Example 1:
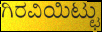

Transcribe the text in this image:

ಗಿರವಿಯಿಟ್ಟು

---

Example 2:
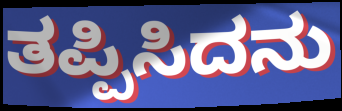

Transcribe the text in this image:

ತಪ್ಪಿಸಿದನು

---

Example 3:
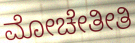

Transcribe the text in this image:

ಮೋಚೇತೀತಿ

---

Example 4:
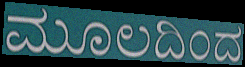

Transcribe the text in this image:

ಮೂಲದಿಂದ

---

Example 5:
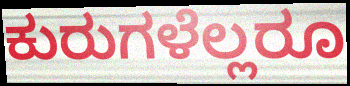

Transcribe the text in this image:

ಕುರುಗಳೆಲ್ಲರೂ